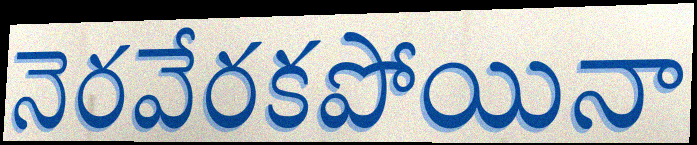
నెరవేరకపోయినా